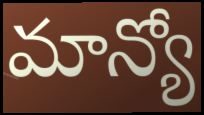
మాన్యో